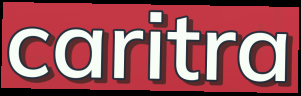
caritra